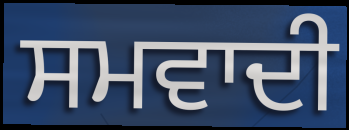
ਸਮਵਾਦੀ